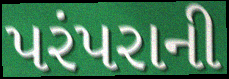
પરંપરાની